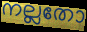
നല്ലതോ